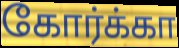
கோர்க்கா